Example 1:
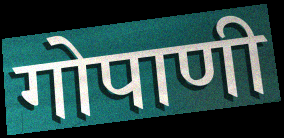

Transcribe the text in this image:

गोपाणी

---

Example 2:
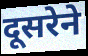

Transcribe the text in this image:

दूसरेने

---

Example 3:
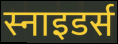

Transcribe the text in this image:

स्नाइडर्स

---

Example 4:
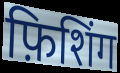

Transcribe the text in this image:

फ़िशिंग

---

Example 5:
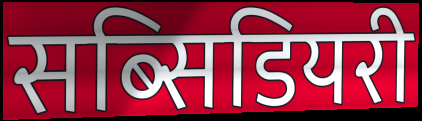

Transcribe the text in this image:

सब्सिडियरी